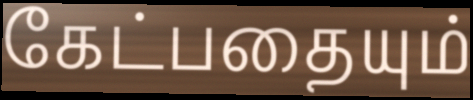
கேட்பதையும்